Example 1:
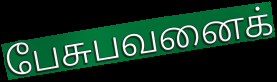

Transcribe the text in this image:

பேசுபவனைக்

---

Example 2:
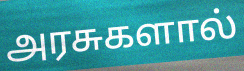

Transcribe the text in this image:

அரசுகளால்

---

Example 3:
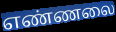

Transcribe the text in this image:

எண்ணலை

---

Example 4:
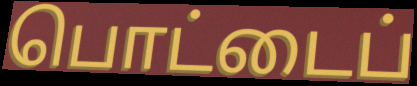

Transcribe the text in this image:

பொட்டைப்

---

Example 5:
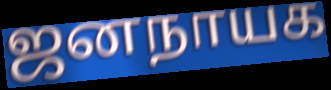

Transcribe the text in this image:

ஜனநாயக